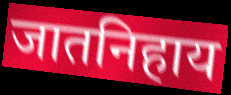
जातनिहाय